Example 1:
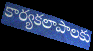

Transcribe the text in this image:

కార్యకలాపాలకు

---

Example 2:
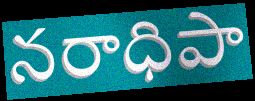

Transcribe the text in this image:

నరాధిపా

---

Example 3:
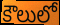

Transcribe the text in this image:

కౌలులో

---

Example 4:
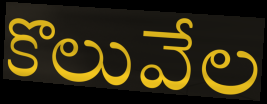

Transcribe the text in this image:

కొలువేల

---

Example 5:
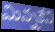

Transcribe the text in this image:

మిన్నకేని